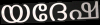
യദേഷ